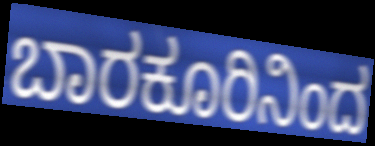
ಬಾರಕೂರಿನಿಂದ